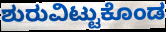
ಶುರುವಿಟ್ಟುಕೊಂಡ